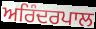
ਅਰਿੰਦਰਪਾਲ